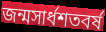
জন্মসার্ধশতবর্ষ